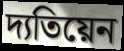
দ্যতিয়েন